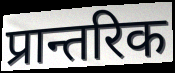
प्रान्तरिक